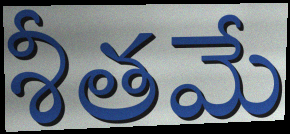
శీతమే